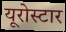
यूरोस्टार